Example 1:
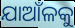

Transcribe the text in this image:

ଯାଆଁଳକୁ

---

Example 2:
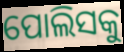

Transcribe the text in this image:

ପୋଲିସକୁ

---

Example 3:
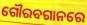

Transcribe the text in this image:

ଗୌରବଗାନରେ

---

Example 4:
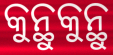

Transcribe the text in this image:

କୁନ୍ଥୁକୁନ୍ଥୁ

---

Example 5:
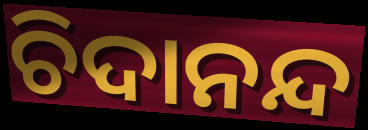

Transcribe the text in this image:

ଚିଦାନନ୍ଦ